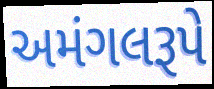
અમંગલરૂપે